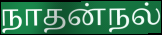
நாதன்நல்